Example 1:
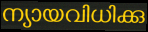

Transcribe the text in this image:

ന്യായവിധിക്കു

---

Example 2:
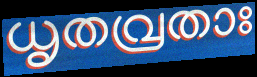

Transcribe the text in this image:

ധൃതവ്രതാഃ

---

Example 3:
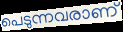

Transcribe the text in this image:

പെടുന്നവരാണ്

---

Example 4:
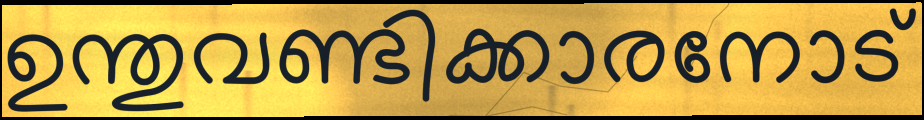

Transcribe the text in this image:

ഉന്തുവണ്ടിക്കാരനോട്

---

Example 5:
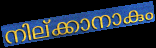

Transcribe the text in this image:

നില്ക്കാനാകും